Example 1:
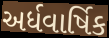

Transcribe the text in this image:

અર્ધવાર્ષિક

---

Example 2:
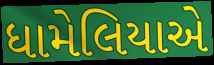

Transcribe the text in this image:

ધામેલિયાએ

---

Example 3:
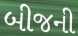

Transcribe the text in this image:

બીજની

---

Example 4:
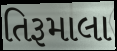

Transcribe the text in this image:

તિરૂમાલા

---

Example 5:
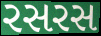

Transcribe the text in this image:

રસરસ